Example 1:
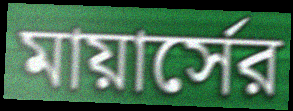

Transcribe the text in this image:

মায়ার্সের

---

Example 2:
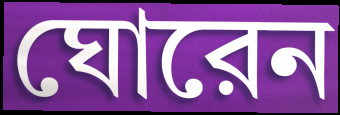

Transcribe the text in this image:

ঘোরেন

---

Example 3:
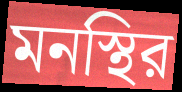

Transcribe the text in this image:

মনস্থির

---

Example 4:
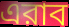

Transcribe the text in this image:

এরাব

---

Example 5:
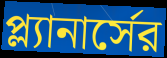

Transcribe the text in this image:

প্ল্যানার্সের